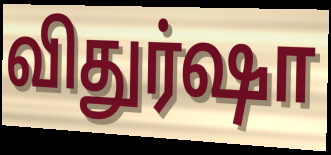
விதுர்ஷா